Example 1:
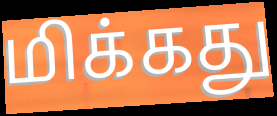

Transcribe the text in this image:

மிக்கது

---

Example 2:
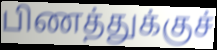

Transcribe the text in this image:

பிணத்துக்குச்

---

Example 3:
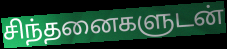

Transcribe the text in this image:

சிந்தனைகளுடன்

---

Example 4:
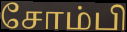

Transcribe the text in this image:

சோம்பி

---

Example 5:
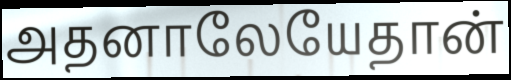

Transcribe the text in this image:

அதனாலேயேதான்